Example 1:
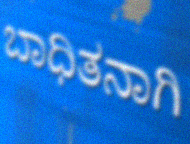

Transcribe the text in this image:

ಬಾಧಿತನಾಗಿ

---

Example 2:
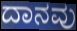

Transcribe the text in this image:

ದಾನವು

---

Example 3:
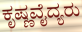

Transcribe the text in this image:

ಕೃಷ್ಣವೈದ್ಯರು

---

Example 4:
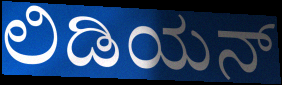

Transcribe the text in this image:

ಲಿಡಿಯನ್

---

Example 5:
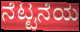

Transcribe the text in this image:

ನೆಟ್ಟನೆಯ